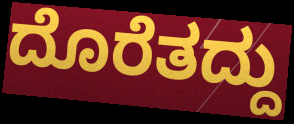
ದೊರೆತದ್ದು